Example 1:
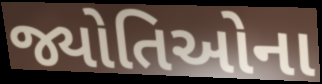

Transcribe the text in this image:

જ્યોતિઓના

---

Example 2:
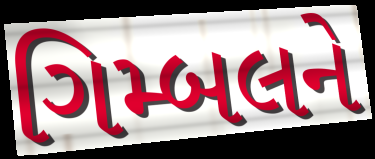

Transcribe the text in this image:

ગિમ્બલને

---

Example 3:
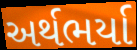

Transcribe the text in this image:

અર્થભર્યા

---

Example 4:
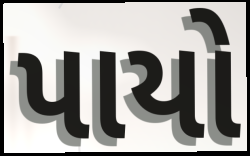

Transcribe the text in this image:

પાયો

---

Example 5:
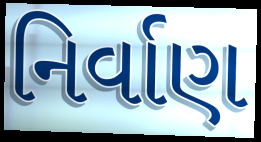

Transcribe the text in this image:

નિર્વાણ